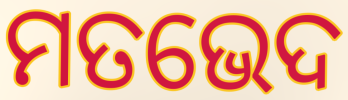
ମତଭେଦ